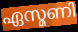
ഏസ്മണി